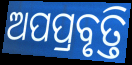
ଅପପ୍ରବୃତ୍ତି